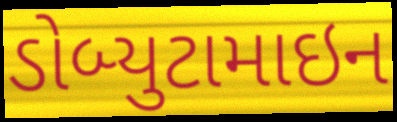
ડોબ્યુટામાઇન